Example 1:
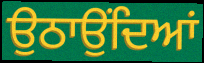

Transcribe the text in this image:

ਉਠਾਉਂਦਿਆਂ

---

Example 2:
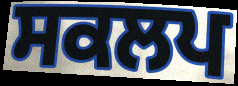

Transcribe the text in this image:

ਸਕਲਪ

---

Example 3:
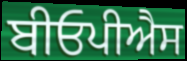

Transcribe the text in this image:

ਬੀਓਪੀਐਸ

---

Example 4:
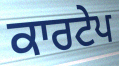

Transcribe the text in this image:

ਕਾਰਟੇਪ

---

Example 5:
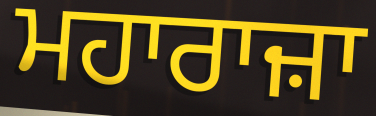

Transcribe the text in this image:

ਮਹਾਰਾਜ਼ਾ